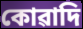
কোৱাদি